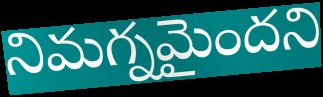
నిమగ్నమైందని